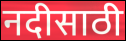
नदीसाठी